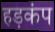
हड़कंप